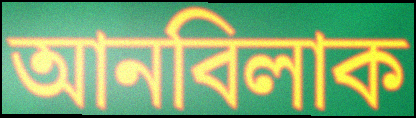
আনবিলাক